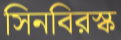
সিনবিরস্ক